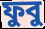
ফুবু